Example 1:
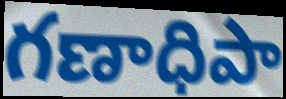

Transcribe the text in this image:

గణాధిపా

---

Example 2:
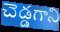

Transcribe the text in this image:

చెడ్డగాని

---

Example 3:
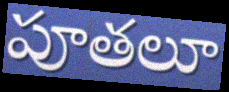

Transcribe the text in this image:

పూతలూ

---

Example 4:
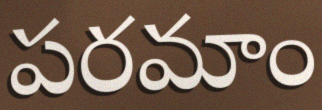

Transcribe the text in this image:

పరమాం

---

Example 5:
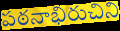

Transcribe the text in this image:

పఠనాభిరుచిని